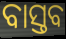
ବାସ୍ତବ